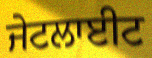
ਜੇਟਲਾਈਟ